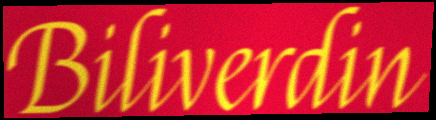
Biliverdin